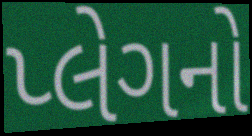
પ્લેગનો